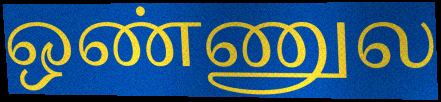
ஒண்ணுல